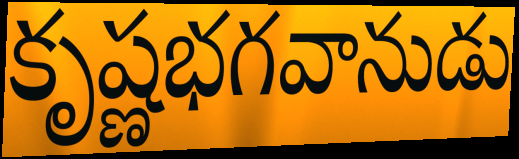
కృష్ణభగవానుడు